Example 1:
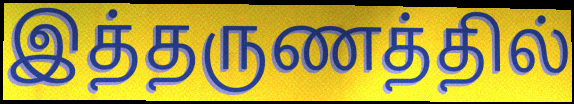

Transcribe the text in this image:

இத்தருணத்தில்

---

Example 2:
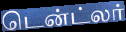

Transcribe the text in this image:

டென்ட்லர்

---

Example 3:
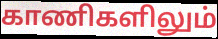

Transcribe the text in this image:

காணிகளிலும்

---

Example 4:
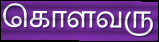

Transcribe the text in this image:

கொளவரு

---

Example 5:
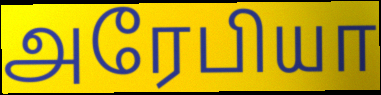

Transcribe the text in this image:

அரேபியா